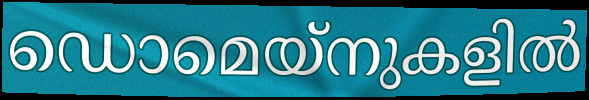
ഡൊമെയ്നുകളിൽ